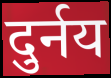
दुर्नय